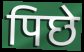
पिछे